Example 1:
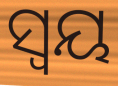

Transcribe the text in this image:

ସ୍ବୟ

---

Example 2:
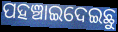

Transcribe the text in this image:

ପହଞ୍ଚାଇଦେଇଛୁ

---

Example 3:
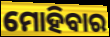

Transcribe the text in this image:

ମୋହିବାର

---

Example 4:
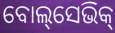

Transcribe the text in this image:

ବୋଲ୍‌ସେଭିକ୍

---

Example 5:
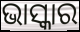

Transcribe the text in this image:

ଭାସ୍କାର